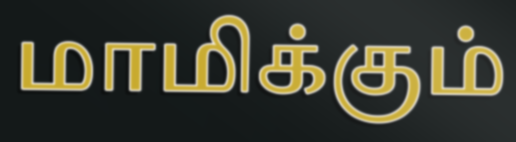
மாமிக்கும்